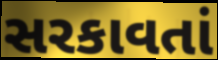
સરકાવતાં